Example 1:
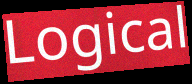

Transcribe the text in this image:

Logical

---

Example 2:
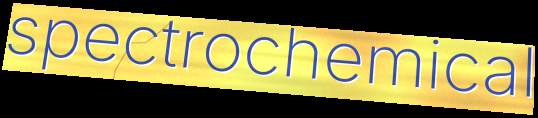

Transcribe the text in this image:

spectrochemical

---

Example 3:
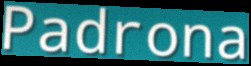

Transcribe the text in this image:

Padrona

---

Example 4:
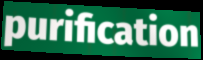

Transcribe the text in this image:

purification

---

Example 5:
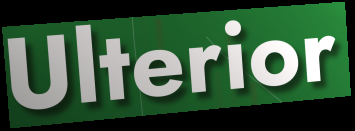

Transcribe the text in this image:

Ulterior